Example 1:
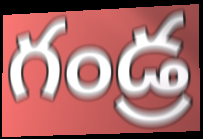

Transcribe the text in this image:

గండ్ర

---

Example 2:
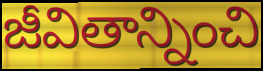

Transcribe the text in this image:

జీవితాన్నించి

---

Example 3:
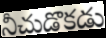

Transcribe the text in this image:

నీచుడొకడు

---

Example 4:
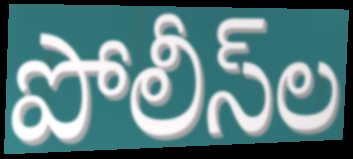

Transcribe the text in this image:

పోలీస్‌ల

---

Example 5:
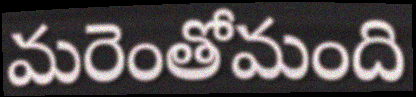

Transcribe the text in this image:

మరెంతోమంది